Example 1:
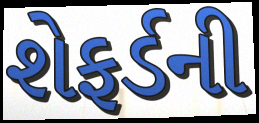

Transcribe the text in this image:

શેફર્ડની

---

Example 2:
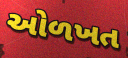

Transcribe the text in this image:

ઓળખત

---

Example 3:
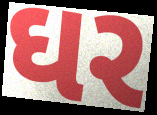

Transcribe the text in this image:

ઘર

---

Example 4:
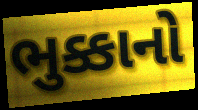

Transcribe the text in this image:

ભુક્કાનો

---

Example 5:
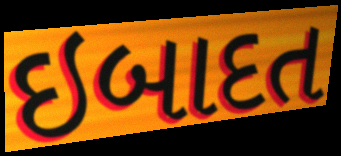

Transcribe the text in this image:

ઇબાદત